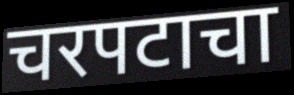
चरपटाचा